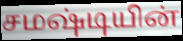
சமஷ்டியின்